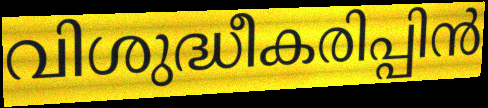
വിശുദ്ധീകരിപ്പിൻ